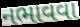
નભાવવા